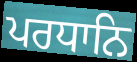
ਪਰਧਾਨਿ